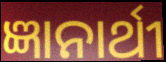
ଜ୍ଞାନାର୍ଥୀ